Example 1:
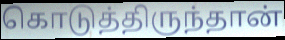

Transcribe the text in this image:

கொடுத்திருந்தான்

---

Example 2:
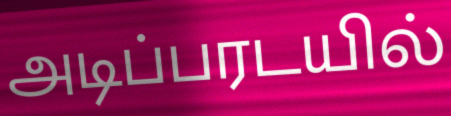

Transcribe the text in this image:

அடிப்பரடயில்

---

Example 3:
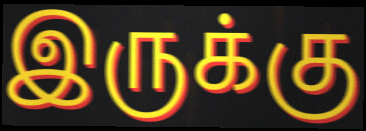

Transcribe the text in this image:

இருக்கு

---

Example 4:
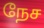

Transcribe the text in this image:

நேச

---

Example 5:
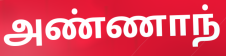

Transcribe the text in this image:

அண்ணாந்